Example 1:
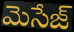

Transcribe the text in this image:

మెసేజ్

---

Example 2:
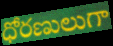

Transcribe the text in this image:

ధోరణులుగా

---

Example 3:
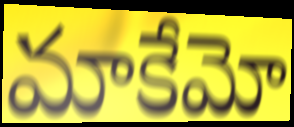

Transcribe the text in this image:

మాకేమో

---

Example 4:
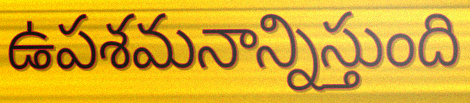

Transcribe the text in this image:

ఉపశమనాన్నిస్తుంది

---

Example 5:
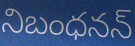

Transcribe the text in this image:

నిబంధనన్